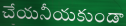
చేయనీయకుండా